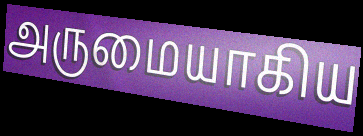
அருமையாகிய